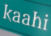
kaahi